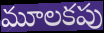
మూలకపు